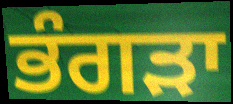
ਭੰਗੜਾ